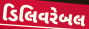
ડિલિવરેબલ